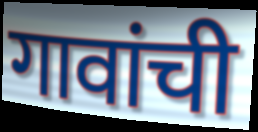
गावांची